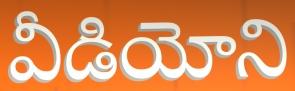
వీడియోని